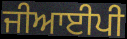
ਜੀਆਈਪੀ